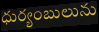
ధుర్యంబులును